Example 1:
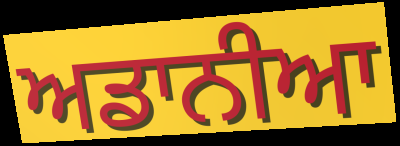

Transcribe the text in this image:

ਅਡਾਨੀਆ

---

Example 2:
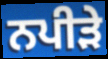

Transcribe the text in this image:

ਨਪੀੜੇ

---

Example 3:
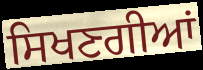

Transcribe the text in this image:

ਸਿਖਣਗੀਆਂ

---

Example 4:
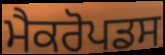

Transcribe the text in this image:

ਮੈਕਰੋਪਡਸ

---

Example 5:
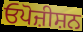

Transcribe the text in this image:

ਓਪੋਜ਼ੀਸ਼ਨ